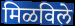
मिळविले